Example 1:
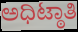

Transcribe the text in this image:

ಅಧಿಟ್ಠಾತಿ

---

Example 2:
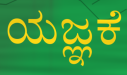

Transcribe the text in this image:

ಯಜ್ಞಕೆ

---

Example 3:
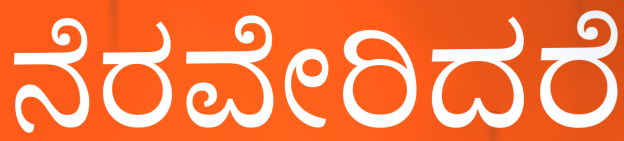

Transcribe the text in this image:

ನೆರವೇರಿದರೆ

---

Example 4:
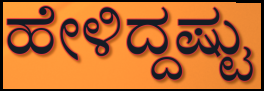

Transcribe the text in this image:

ಹೇಳಿದ್ದಷ್ಟು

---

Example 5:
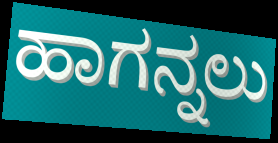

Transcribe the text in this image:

ಹಾಗನ್ನಲು